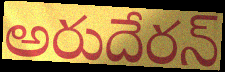
అరుదేరన్